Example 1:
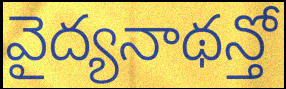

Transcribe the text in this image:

వైద్యనాథన్తో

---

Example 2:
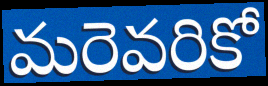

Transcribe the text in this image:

మరెవరికో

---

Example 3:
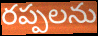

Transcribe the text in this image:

రప్పలను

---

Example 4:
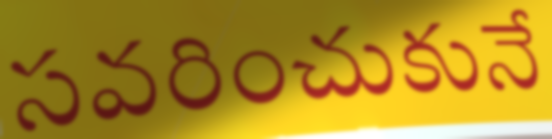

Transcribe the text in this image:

సవరించుకునే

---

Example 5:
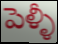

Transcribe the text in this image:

పెళ్ళీ